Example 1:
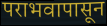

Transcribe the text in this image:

पराभवापासून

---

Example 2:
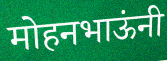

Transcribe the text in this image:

मोहनभाऊंनी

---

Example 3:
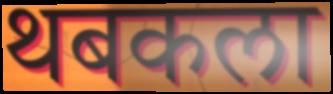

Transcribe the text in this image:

थबकला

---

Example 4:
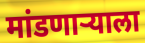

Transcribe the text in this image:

मांडणाऱ्याला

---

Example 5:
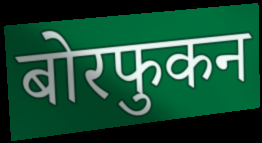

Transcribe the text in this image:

बोरफुकन